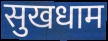
सुखधाम